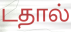
டதால்